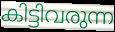
കിട്ടിവരുന്ന